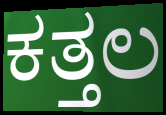
ಕತ್ತಲ